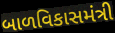
બાળવિકાસમંત્રી